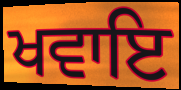
ਖਵਾਇ